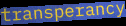
transperancy